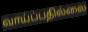
வாய்ப்பதில்லை